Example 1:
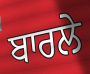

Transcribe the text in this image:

ਬਾਰਲੇ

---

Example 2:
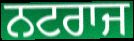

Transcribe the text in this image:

ਨਟਰਾਜ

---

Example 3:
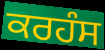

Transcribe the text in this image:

ਕਰਹੰਸ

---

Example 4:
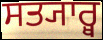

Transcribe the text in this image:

ਸਤ੍ਯਾਰ੍ਥ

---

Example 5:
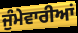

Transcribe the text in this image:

ਜੁੰਮੇਵਾਰੀਆਂ